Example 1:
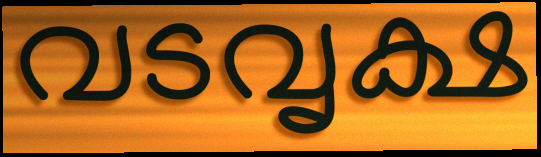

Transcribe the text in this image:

വടവൃക്ഷ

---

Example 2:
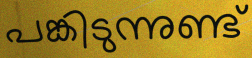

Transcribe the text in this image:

പങ്കിടുന്നുണ്ട്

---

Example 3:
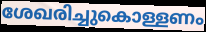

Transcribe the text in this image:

ശേഖരിച്ചുകൊള്ളണം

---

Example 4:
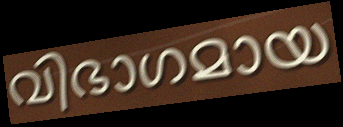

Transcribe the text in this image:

വിഭാഗമായ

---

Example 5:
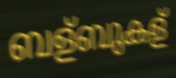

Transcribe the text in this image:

ബള്ബുകള്